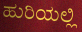
ಹುರಿಯಲ್ಲಿ